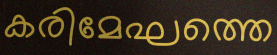
കരിമേഘത്തെ